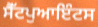
ਸੈੱਟਪੁਆਇੰਟਸ